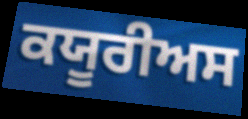
ਕਯੂਰੀਅਸ